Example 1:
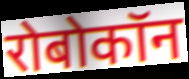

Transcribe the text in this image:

रोबोकॉन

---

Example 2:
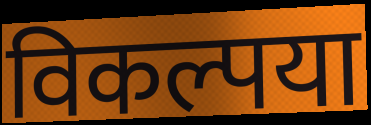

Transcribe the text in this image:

विकल्पया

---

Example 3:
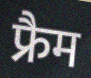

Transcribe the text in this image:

फ्रैम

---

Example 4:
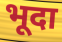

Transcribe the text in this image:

भूदा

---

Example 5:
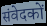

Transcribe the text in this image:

संवेदकों